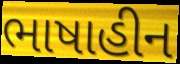
ભાષાહીન